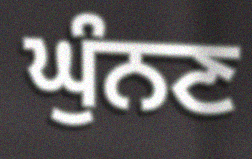
ਘੁੰਨਣ